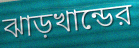
ঝাড়খান্ডের